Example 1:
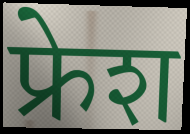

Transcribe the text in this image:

फ्रेश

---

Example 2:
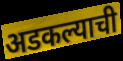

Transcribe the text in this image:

अडकल्याची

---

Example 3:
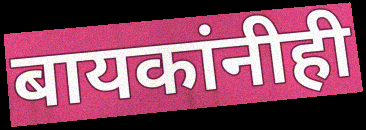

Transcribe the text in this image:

बायकांनीही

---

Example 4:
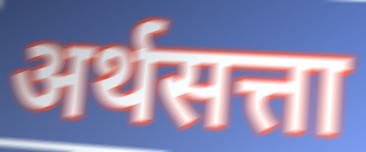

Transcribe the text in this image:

अर्थसत्ता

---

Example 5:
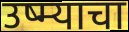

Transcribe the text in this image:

उष्म्याचा